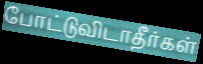
போட்டுவிடாதீர்கள்